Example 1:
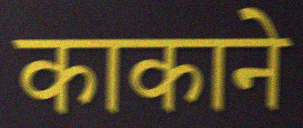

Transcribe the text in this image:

काकाने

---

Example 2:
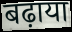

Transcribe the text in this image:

बढ़ाया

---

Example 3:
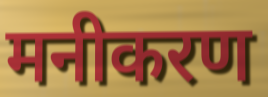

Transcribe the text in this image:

मनीकरण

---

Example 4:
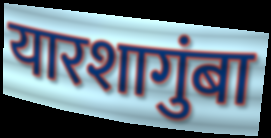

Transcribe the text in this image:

यारशागुंबा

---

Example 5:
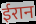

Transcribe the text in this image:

ईरान